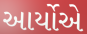
આર્યોએ